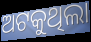
ଅଟକୁଥିଲା